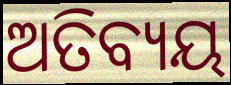
ଅତିବ୍ୟୟ